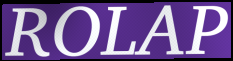
ROLAP